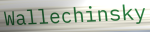
Wallechinsky